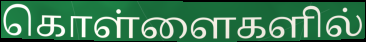
கொள்ளைகளில்